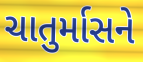
ચાતુર્માસને